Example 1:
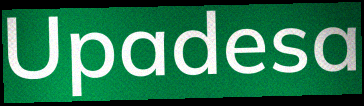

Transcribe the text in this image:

Upadesa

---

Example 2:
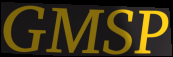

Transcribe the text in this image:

GMSP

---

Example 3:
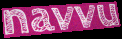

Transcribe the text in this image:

navvu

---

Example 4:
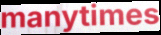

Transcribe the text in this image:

manytimes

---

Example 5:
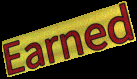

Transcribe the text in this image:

Earned